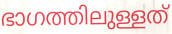
ഭാഗത്തിലുള്ളത്